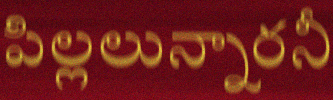
పిల్లలున్నారనీ